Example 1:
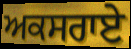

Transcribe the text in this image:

ਅਕਸਰਾਏ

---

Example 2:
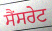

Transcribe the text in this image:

ਸੈਂਸਰੇਟ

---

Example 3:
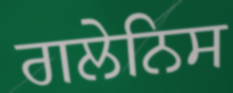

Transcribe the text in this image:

ਗਲੇਨਿਸ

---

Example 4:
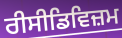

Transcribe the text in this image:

ਰੀਸੀਡਿਵਿਜ਼ਮ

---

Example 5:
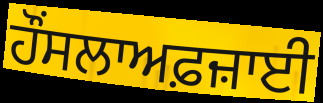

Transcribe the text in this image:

ਹੌਂਸਲਾਅਫ਼ਜ਼ਾਈ